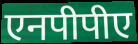
एनपीपीए